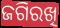
ଜଗିରଖି